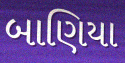
બાણિયા